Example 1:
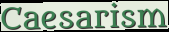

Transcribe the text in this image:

Caesarism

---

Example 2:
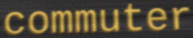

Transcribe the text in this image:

commuter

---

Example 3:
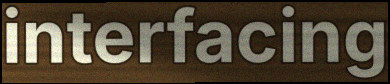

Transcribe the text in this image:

interfacing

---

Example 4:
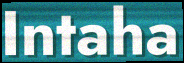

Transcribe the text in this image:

Intaha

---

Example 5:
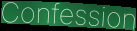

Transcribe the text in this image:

Confession